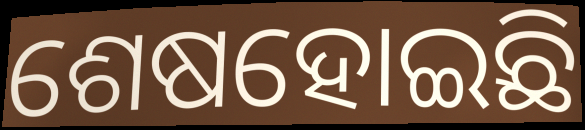
ଶେଷହୋଇଛି